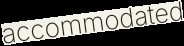
accommodated